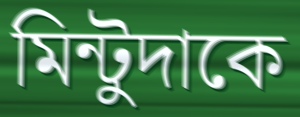
মিন্টুদাকে